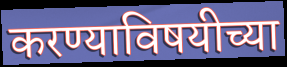
करण्याविषयीच्या